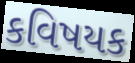
કવિષયક